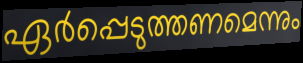
ഏർപ്പെടുത്തണമെന്നും